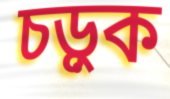
চড়ুক